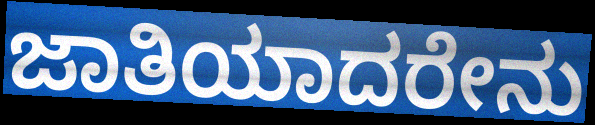
ಜಾತಿಯಾದರೇನು